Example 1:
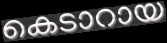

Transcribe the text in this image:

കെടാറായ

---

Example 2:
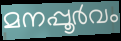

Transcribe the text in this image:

മനപ്പൂർവം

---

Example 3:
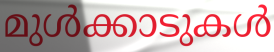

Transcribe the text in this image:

മുൾക്കാടുകൾ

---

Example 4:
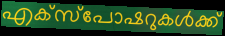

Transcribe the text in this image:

എക്സ്പോഷറുകൾക്ക്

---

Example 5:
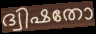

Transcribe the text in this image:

ദ്വിഷതോ